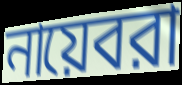
নায়েবরা